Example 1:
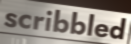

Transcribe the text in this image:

scribbled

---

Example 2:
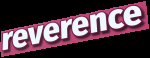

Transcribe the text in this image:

reverence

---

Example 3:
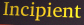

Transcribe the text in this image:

Incipient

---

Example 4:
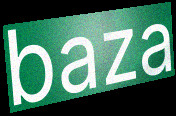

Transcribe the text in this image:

baza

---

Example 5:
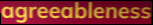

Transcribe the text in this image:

agreeableness